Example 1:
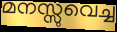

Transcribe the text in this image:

മനസ്സുവെച്ച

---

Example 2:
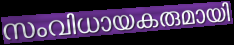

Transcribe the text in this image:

സംവിധായകരുമായി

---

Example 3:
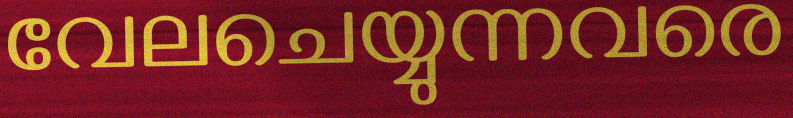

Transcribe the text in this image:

വേലചെയ്യുന്നവരെ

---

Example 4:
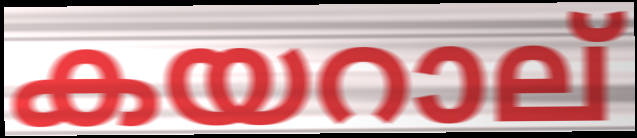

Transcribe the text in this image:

കയറാല്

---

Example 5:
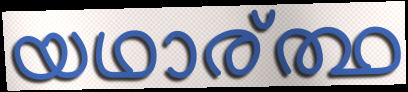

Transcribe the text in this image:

യഥാര്ത്ഥ